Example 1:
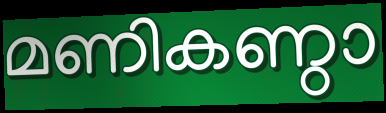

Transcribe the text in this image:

മണികണ്ഠാ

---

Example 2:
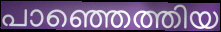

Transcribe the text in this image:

പാഞ്ഞെത്തിയ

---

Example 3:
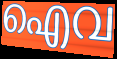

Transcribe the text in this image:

ഐവ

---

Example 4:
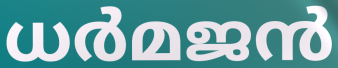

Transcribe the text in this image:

ധർമജൻ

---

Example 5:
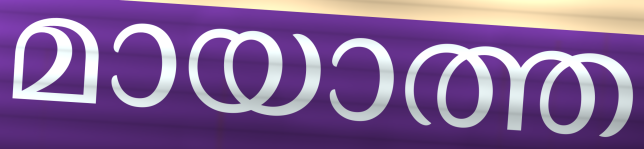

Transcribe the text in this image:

മായാത്ത